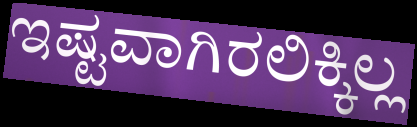
ಇಷ್ಟವಾಗಿರಲಿಕ್ಕಿಲ್ಲ